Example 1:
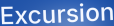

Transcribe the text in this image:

Excursion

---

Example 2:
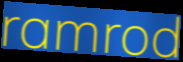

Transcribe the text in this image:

ramrod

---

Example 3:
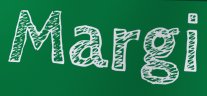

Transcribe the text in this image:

Margi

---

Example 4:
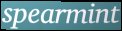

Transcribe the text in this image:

spearmint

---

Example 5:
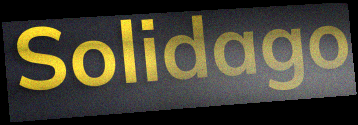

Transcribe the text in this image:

Solidago